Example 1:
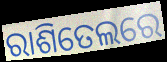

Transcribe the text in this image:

ରାଶିତେଲରେ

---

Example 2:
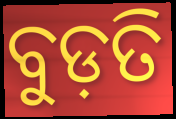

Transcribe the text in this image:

ବୁଡ଼ତି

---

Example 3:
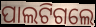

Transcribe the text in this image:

ପାଲଟିଗଲେ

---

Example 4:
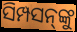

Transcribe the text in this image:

ସିମ୍ପସନ୍‍ଙ୍କୁ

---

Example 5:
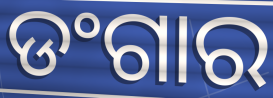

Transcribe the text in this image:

ଡଂଗାର